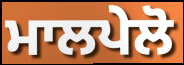
ਮਾਲਪੇਲੋ